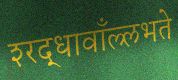
श्रद्धावाँल्लभते